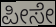
ಪೀಸೇ